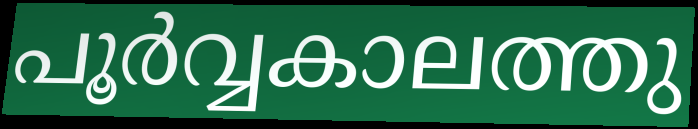
പൂർവ്വകാലത്തു